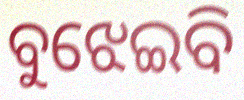
ବୁଝେଇବି